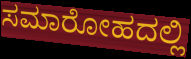
ಸಮಾರೋಹದಲ್ಲಿ